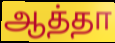
ஆத்தா